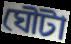
ঘৌটা